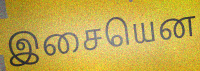
இசையென